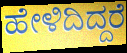
ಹೇಳಿದಿದ್ದರೆ